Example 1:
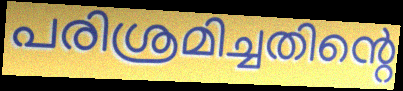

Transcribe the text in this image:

പരിശ്രമിച്ചതിന്റെ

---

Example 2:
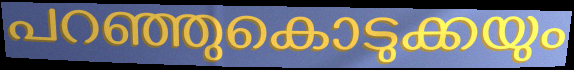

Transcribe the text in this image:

പറഞ്ഞുകൊടുക്കയും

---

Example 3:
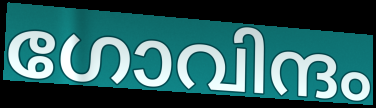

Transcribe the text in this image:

ഗോവിന്ദം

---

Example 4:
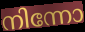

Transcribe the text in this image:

നിന്നോ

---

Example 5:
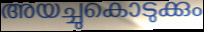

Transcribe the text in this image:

അയച്ചുകൊടുക്കും